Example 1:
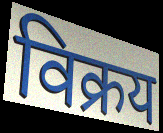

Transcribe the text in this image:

विक्रय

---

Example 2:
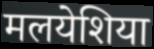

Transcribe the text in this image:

मलयेशिया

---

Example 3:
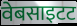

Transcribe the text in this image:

वेबसाइटट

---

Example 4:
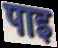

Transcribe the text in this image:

पाइ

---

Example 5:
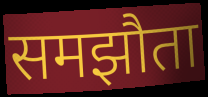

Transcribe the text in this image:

समझौता